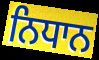
ਨਿਧਾਨ